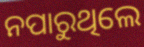
ନପାରୁଥିଲେ